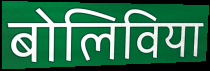
बोलिविया